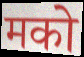
मको